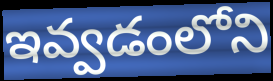
ఇవ్వడంలోని